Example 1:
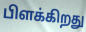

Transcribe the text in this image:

பிளக்கிறது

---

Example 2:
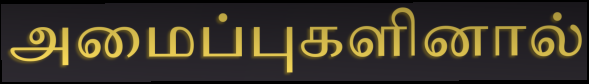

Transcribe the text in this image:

அமைப்புகளினால்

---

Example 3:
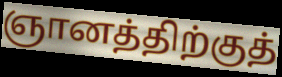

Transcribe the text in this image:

ஞானத்திற்குத்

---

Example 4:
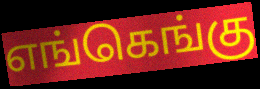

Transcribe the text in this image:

எங்கெங்கு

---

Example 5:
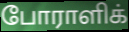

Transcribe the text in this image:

போராளிக்